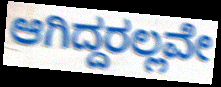
ಆಗಿದ್ದರಲ್ಲವೇ